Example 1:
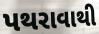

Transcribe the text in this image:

પથરાવાથી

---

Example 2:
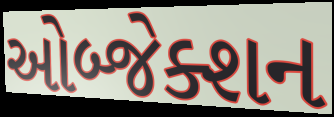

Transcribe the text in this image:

ઓબ્જેક્શન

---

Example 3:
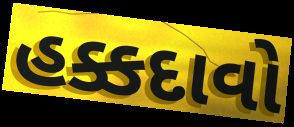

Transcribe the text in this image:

હક્કદાવો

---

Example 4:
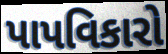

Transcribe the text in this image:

પાપવિકારો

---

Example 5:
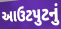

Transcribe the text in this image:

આઉટપુટનું